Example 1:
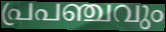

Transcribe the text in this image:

പ്രപഞ്ചവും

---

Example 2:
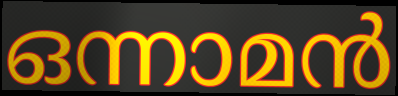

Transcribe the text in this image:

ഒന്നാമൻ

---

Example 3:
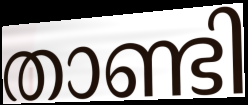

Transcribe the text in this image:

താണ്ടി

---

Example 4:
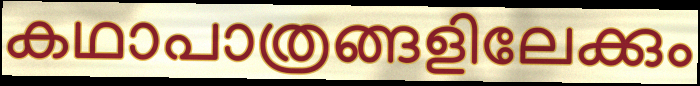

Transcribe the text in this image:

കഥാപാത്രങ്ങളിലേക്കും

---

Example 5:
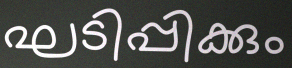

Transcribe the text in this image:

ഘടിപ്പിക്കും